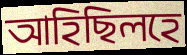
আহিছিলহে